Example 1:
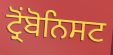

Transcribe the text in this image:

ਟ੍ਰੋਂਬੋਨਿਸਟ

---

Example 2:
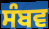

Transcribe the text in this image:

ਸੰਬਵ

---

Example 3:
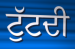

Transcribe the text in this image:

ਟੁੱਟਦੀ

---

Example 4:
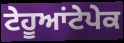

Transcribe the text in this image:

ਟੇਹੂਆਂਟੇਪੇਕ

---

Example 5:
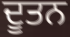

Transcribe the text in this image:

ਦੂਤਨ